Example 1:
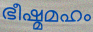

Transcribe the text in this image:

ഭീഷ്മമഹം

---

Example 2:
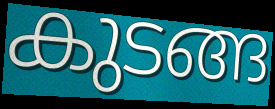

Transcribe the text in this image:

കുടങ്ങ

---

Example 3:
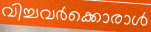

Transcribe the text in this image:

വിച്ചവർക്കൊരാൾ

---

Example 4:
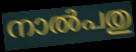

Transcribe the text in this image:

നാൽപതു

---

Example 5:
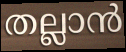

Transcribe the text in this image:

തല്ലാൻ